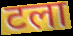
टला